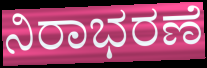
ನಿರಾಭರಣೆ